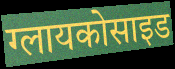
ग्लायकोसाइड